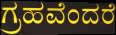
ಗ್ರಹವೆಂದರೆ